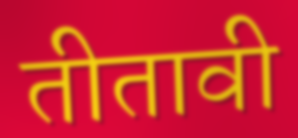
तीतावी